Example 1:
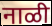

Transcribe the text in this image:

नाळी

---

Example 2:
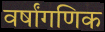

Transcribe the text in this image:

वर्षांगणिक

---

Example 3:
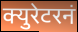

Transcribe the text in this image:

क्युरेटरनं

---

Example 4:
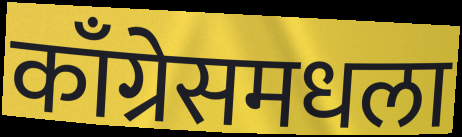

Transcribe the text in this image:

काँग्रेसमधला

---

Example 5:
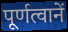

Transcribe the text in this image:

पूर्णत्वानें